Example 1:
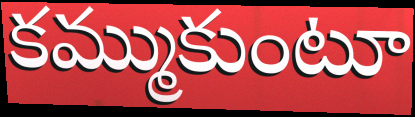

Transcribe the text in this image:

కమ్ముకుంటూ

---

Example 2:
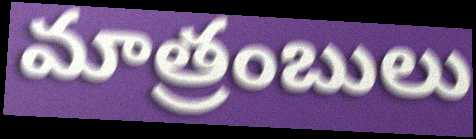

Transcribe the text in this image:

మాత్రంబులు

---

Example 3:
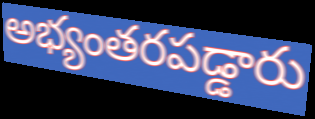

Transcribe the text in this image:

అభ్యంతరపడ్డారు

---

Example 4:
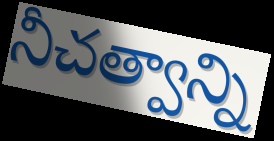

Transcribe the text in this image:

నీచత్వాన్ని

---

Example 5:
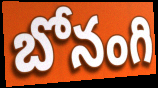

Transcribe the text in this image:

బోనంగి